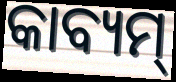
କାବ୍ୟମ୍